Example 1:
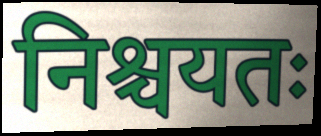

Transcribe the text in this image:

निश्चयतः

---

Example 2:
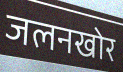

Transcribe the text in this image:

जलनखोर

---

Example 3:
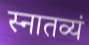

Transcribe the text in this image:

स्नातव्यं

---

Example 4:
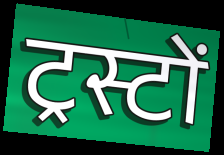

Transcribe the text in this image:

ट्रस्टों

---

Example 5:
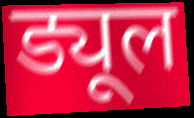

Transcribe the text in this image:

ड्यूल